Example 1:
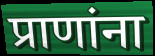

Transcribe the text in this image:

प्राणांना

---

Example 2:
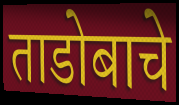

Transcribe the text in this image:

ताडोबाचे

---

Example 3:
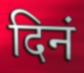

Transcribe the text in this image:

दिनं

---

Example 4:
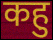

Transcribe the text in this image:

कहु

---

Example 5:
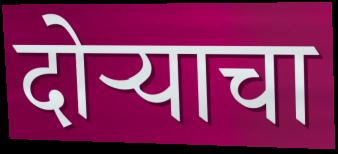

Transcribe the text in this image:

दोर्‍याचा